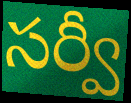
సర్వీ